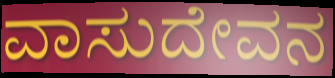
ವಾಸುದೇವನ